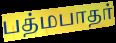
பத்மபாதர்